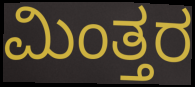
ಮಿಂತ್ತರ